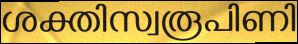
ശക്തിസ്വരൂപിണി